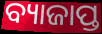
ବ୍ୟାଜାପ୍ତ